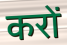
करों